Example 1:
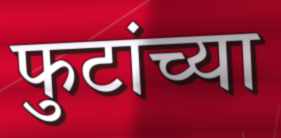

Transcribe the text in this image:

फुटांच्या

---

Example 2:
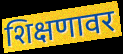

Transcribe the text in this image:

शिक्षणावर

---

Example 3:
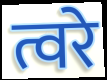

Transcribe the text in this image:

त्वरे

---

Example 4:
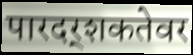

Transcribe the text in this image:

पारदर्शकतेवर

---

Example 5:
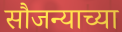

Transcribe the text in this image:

सौजन्याच्या